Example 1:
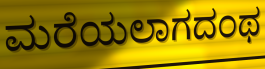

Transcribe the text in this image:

ಮರೆಯಲಾಗದಂಥ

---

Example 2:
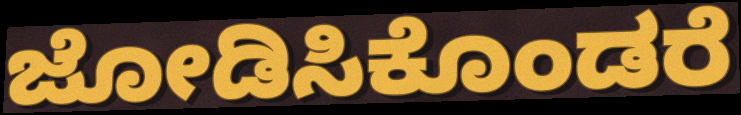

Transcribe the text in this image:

ಜೋಡಿಸಿಕೊಂಡರೆ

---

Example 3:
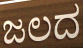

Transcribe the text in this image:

ಜಲದ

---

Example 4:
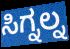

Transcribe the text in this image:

ಸಿಗ್ನಲ್ನ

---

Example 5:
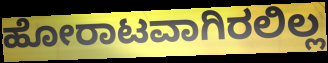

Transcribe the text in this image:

ಹೋರಾಟವಾಗಿರಲಿಲ್ಲ